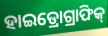
ହାଇଡ୍ରୋଗ୍ରାଫିକ୍